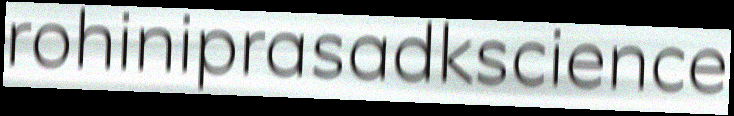
rohiniprasadkscience